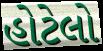
હોટેલો